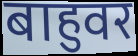
बाहुवर